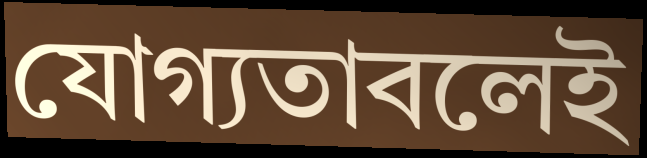
যোগ্যতাবলেই